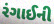
રંગાઈની